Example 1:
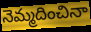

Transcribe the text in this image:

నెమ్మదించినా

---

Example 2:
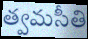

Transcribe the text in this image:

త్వమసీతి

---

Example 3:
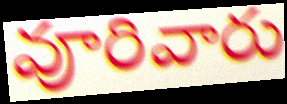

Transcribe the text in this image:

వూరివారు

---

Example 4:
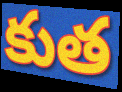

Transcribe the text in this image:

కుత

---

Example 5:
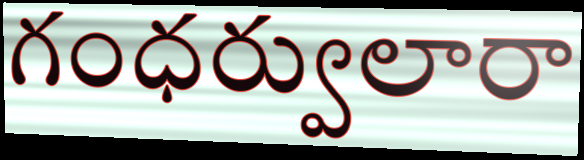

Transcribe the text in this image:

గంధర్వులారా